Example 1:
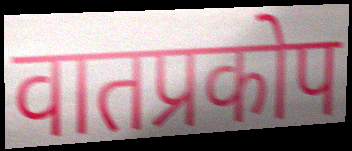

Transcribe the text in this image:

वातप्रकोप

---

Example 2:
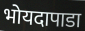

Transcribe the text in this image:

भोयदापाडा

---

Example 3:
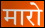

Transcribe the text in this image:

मारो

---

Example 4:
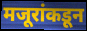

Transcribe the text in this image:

मजूरांकडून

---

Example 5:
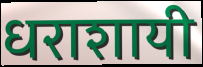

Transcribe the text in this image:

धराशायी